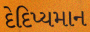
દેદિપ્યમાન